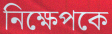
নিক্ষেপকে